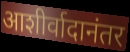
आशीर्वादानंतर